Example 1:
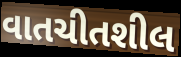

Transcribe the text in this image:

વાતચીતશીલ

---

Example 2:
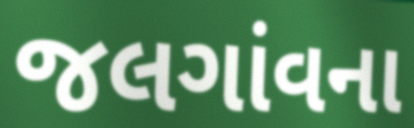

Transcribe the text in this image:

જલગાંવના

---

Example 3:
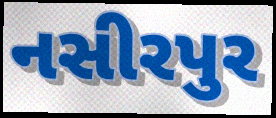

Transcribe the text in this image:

નસીરપુર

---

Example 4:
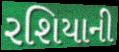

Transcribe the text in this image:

રશિયાની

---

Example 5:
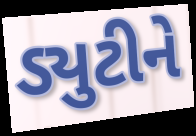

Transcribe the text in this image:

ડ્યુટીને